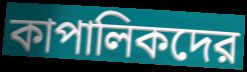
কাপালিকদের